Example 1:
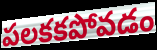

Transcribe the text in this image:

పలకకపోవడం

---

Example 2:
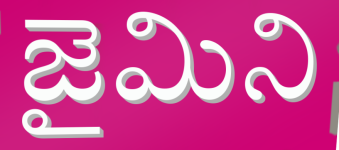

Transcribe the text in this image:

జైమిని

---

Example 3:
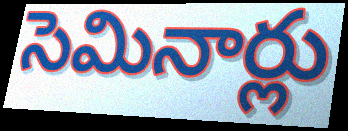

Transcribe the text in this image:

సెమినార్లు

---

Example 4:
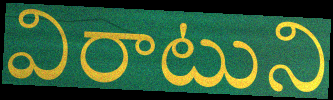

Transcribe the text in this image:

విరాటుని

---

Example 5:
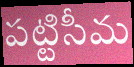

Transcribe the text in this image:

పట్టిసీమ